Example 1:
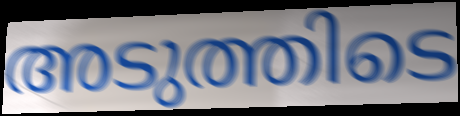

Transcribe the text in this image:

അടുത്തിടെ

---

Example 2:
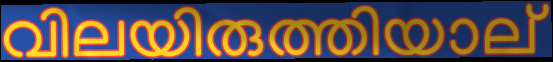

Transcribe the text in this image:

വിലയിരുത്തിയാല്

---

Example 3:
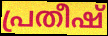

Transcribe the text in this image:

പ്രതീഷ്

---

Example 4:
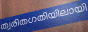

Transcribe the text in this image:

ത്വരിതഗതിയിലായി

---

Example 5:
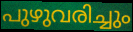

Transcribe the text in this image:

പുഴുവരിച്ചും